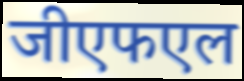
जीएफएल